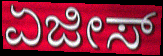
ಏಜೀಸ್